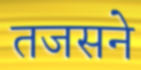
तजसने